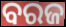
ବରଜ